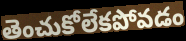
తెంచుకోలేకపోవడం